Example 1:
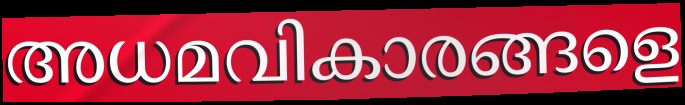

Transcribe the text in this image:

അധമവികാരങ്ങളെ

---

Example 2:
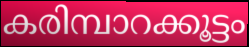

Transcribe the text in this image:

കരിമ്പാറക്കൂട്ടം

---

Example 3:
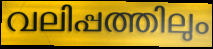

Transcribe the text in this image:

വലിപ്പത്തിലും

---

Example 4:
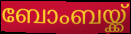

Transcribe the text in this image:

ബോംബയ്ക്ക്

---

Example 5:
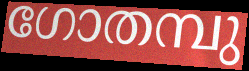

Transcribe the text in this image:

ഗോതമ്പു